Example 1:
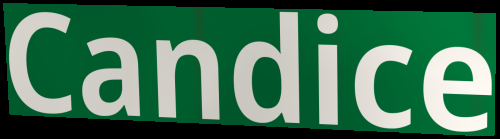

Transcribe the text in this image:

Candice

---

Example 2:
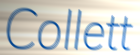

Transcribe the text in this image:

Collett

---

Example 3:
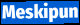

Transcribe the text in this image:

Meskipun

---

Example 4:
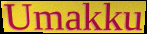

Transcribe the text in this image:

Umakku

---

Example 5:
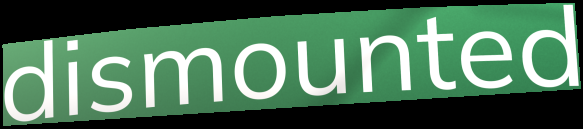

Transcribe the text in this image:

dismounted